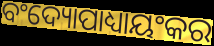
ବଂଦ୍ୟୋପାଧ୍ୟାୟଂକର